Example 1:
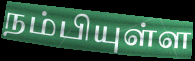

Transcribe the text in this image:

நம்பியுள்ள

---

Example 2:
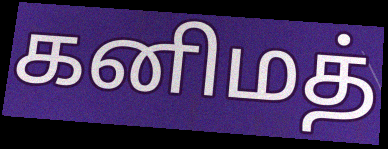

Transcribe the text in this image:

கனிமத்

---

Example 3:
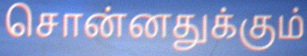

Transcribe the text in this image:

சொன்னதுக்கும்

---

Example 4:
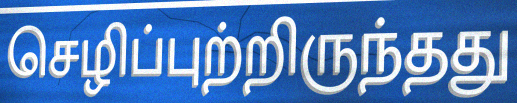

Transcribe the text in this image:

செழிப்புற்றிருந்தது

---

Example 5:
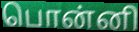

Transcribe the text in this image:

பொன்னி